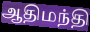
ஆதிமந்தி